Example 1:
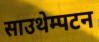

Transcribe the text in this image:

साउथेम्पटन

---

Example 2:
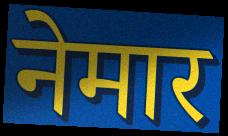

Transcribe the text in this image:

नेमार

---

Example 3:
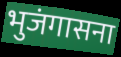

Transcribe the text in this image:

भुजंगासना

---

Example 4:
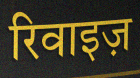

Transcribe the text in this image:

रिवाइज़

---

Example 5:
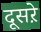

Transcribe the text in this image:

दूसऱे